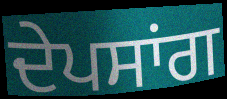
ਦੇਪਸਾਂਗ